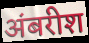
अंबरीश